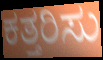
ಕತ್ತರಿಸು